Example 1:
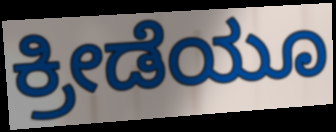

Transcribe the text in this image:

ಕ್ರೀಡೆಯೂ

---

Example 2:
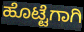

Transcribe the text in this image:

ಹೊಟ್ಟೆಗಾಗಿ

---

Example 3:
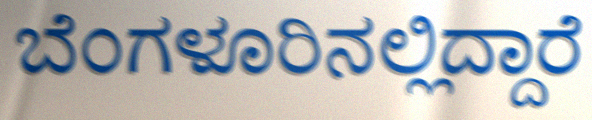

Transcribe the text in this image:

ಬೆಂಗಳೂರಿನಲ್ಲಿದ್ದಾರೆ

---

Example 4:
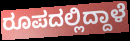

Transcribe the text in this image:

ರೂಪದಲ್ಲಿದ್ದಾಳೆ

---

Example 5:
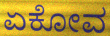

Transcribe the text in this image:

ಏಕೋವ